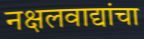
नक्षलवाद्यांचा